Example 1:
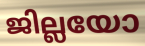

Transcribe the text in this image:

ജില്ലയോ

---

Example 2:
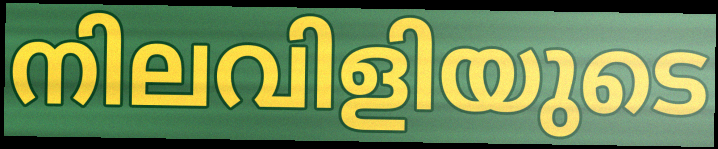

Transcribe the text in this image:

നിലവിളിയുടെ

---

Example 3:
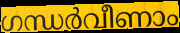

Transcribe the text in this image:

ഗന്ധർവീണാം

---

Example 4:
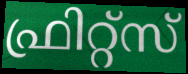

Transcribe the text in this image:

ഫ്രിറ്റ്സ്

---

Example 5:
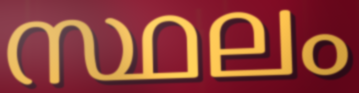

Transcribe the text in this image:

സ്ഥലം